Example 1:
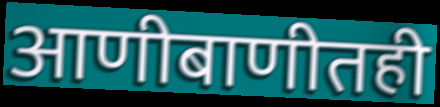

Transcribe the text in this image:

आणीबाणीतही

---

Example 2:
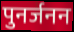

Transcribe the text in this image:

पुनर्जनन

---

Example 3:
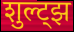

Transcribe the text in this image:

शुल्ट्झ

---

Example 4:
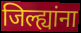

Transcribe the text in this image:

जिल्ह्यांना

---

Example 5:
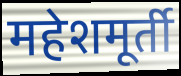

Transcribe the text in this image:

महेशमूर्ती